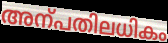
അന്പതിലധികം